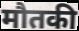
मौतकी